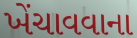
ખેંચાવવાના